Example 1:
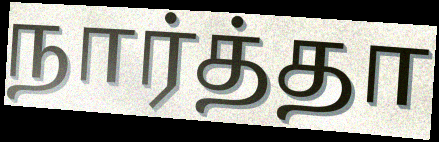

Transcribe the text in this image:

நார்த்தா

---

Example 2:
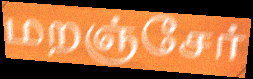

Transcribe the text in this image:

மறஞ்சேர்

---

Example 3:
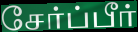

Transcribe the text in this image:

சேர்ப்பீர்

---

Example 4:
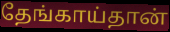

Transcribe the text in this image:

தேங்காய்தான்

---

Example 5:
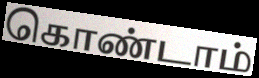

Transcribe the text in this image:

கொண்டாம்